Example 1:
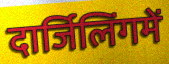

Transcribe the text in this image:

दार्जिलिंगमें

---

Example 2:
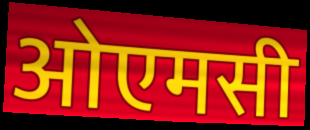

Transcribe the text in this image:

ओएमसी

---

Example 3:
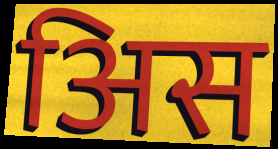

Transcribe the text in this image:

अिस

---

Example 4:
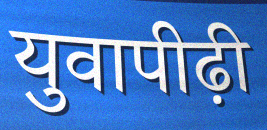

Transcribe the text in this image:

युवापीढ़ी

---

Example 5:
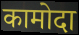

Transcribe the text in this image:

कामोदा